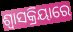
ଶ୍ୱାସକ୍ରିୟାରେ